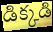
డిక్కడి